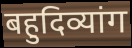
बहुदिव्यांग